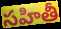
సహితీ